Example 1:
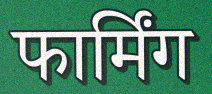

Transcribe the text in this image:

फार्मिंग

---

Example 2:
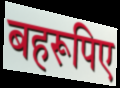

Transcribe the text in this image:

बहरूपिए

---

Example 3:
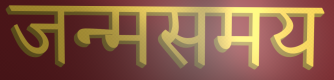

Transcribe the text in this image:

जन्मसमय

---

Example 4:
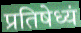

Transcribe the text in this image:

प्रतिषेध्यं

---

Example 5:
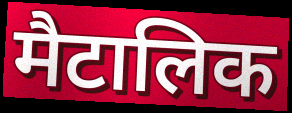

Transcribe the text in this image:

मैटालिक